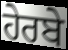
ਹੇਰਬੇ